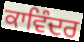
ਕਾਵਿੰਦਰ